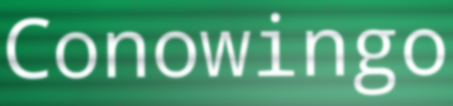
Conowingo